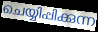
ചെയ്യിപ്പിക്കുന്ന